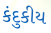
કંદુકીય